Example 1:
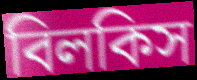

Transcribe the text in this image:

বিলকিস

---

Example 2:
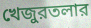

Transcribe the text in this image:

খেজুরতলার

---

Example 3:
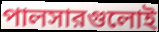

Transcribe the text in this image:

পালসারগুলোই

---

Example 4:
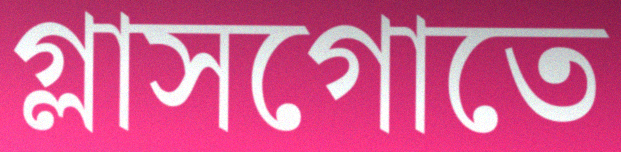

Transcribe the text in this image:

গ্লাসগোতে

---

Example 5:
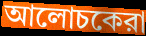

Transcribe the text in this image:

আলোচকেরা